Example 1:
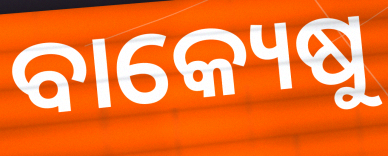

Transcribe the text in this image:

ବାକ୍ୟେଷୁ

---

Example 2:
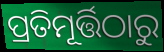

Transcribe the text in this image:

ପ୍ରତିମୂର୍ତ୍ତିଠାରୁ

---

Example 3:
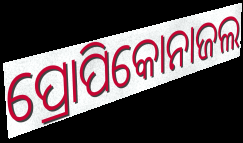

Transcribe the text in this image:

ପ୍ରୋପିକୋନାଜଲ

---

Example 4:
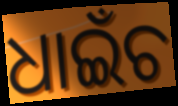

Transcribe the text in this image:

ଧାଇଁଚ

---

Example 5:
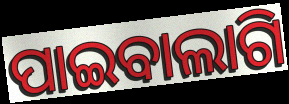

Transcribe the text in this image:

ପାଇବାଲାଗି